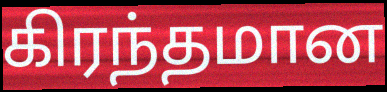
கிரந்தமான